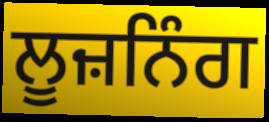
ਲੂਜ਼ਨਿੰਗ